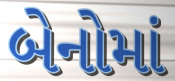
બેનોમાં